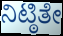
ನಿಟ್ಠಿತೇ